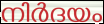
നിർദയം